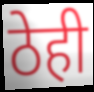
ठेही